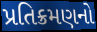
પ્રતિક્રમણનો